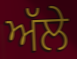
ਅੱਲੇ